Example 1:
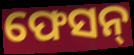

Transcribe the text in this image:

ଫେସନ୍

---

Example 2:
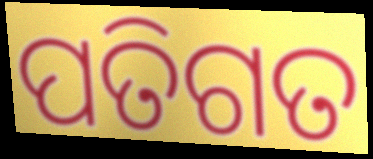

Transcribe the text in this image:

ପତିଗତ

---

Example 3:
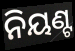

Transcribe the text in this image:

ନିୟଣ୍ଟ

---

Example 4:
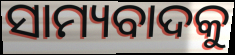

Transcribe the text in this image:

ସାମ୍ୟବାଦକୁ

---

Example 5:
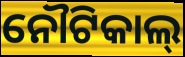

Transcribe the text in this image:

ନୌଟିକାଲ୍